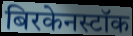
बिरकेनस्टॉक